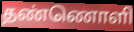
தண்ணொளி